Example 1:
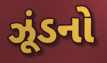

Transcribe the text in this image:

ઝૂંડનો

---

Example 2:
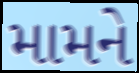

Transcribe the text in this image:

મામને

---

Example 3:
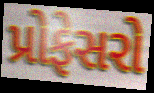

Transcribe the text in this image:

પ્રોફેસરો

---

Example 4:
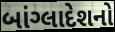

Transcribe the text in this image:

બાંગ્લાદેશનો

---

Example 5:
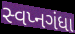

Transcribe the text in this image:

સ્વપ્નગંધા